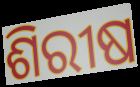
ଶିରୀଷ